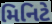
મિનિટે